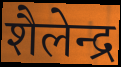
शैलेन्द्र